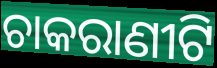
ଚାକରାଣୀଟି